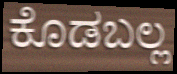
ಕೊಡಬಲ್ಲ